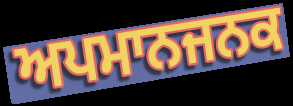
ਅਪਮਾਨਜਨਕ